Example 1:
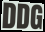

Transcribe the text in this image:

DDG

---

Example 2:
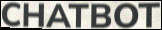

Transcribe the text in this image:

CHATBOT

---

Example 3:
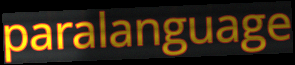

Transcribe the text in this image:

paralanguage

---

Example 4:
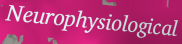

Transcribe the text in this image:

Neurophysiological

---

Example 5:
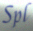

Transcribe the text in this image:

Spl